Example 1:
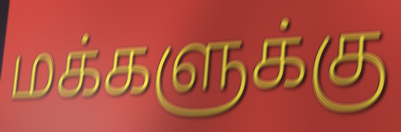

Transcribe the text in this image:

மக்களுக்கு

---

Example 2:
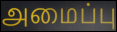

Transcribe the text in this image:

அமைப்பு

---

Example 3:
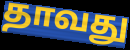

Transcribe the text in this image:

தாவது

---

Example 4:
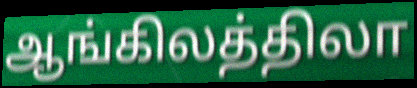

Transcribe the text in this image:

ஆங்கிலத்திலா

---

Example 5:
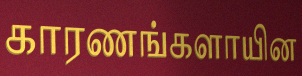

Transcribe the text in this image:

காரணங்களாயின